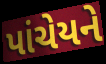
પાંચેયને